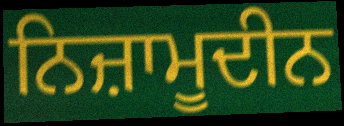
ਨਿਜ਼ਾਮੂਦੀਨ